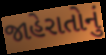
જાહેરાતોનું